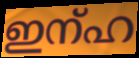
ഇന്ഹ